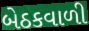
બેઠકવાળી